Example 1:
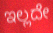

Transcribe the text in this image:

ಇಲ್ಲದೇ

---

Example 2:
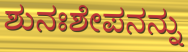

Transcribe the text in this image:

ಶುನಃಶೇಪನನ್ನು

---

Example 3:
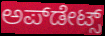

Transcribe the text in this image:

ಅಪ್‌ಡೇಟ್ಸ್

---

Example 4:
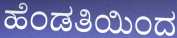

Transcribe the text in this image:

ಹೆಂಡತಿಯಿಂದ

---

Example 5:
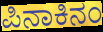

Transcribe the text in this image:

ಪಿನಾಕಿನಂ